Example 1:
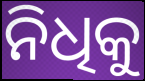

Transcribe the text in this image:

ନିଧିକୁ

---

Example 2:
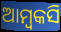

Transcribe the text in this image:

ଆମ୍ବକସି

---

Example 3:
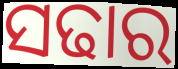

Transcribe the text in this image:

ସଢାର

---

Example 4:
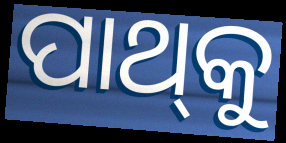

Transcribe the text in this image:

ପାଥ୍‌କୁ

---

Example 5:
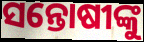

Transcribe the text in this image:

ସନ୍ତୋଷୀଙ୍କୁ